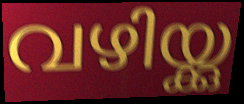
വഴിയ്ക്കു